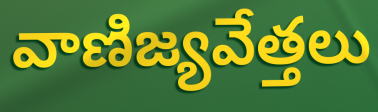
వాణిజ్యవేత్తలు